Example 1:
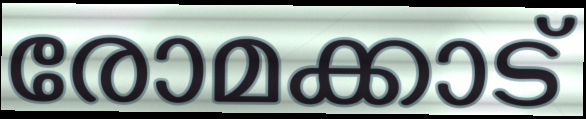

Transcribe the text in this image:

രോമക്കാട്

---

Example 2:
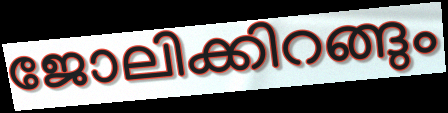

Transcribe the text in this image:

ജോലിക്കിറങ്ങും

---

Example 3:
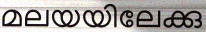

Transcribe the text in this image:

മലയയിലേക്കു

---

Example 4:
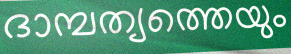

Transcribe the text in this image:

ദാമ്പത്യത്തെയും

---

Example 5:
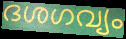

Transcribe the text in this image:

ദശഗവ്യം